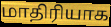
மாதிரியாக